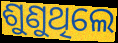
ଶୁଣୁଥିଲେ